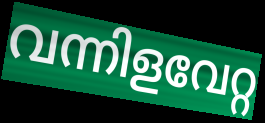
വന്നിളവേറ്റ